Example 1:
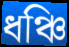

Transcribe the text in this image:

ধঞ্চি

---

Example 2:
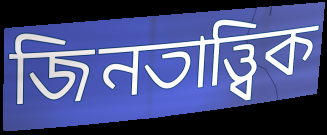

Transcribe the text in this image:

জিনতাত্ত্বিক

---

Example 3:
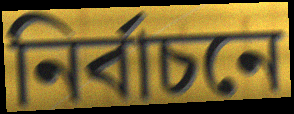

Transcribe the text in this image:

নির্বাচনে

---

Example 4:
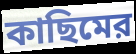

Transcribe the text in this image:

কাছিমের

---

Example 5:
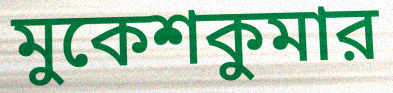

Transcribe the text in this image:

মুকেশকুমার